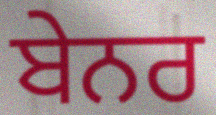
ਬੇਨਰ